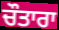
ਚੌਤਾਰਾ